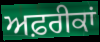
ਅਫ਼ਰੀਕਾਂ